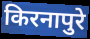
किरनापुरे